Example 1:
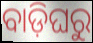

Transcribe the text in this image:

ବାଡ଼ିଘରୁ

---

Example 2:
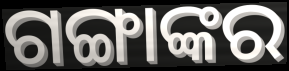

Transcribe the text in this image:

ଗଙ୍ଗାଙ୍କର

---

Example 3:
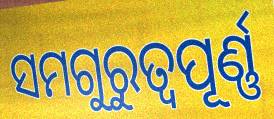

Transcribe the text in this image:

ସମଗୁରୁତ୍ଵପୂର୍ଣ୍ଣ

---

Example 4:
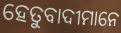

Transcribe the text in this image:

ହେତୁବାଦୀମାନେ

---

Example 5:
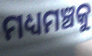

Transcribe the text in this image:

ମଧ୍ୟମଞ୍ଚକୁ